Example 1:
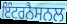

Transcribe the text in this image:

ਇੰਟਰਨੈਸਨਲ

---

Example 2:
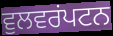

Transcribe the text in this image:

ਵੁਲਵਰਂਪਟਨ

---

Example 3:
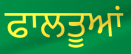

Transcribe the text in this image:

ਫਾਲਤੂਆਂ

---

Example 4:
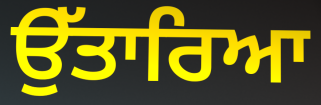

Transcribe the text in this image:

ਉੱਤਾਰਿਆ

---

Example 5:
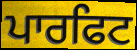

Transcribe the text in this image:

ਪਾਰਫਿਟ